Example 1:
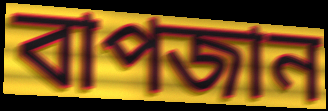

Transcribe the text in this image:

বাপজান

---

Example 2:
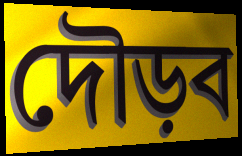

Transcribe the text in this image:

দৌড়ব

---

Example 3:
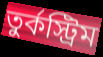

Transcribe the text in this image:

তুর্কস্ট্রিম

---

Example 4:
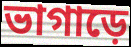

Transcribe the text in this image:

ভাগাড়ে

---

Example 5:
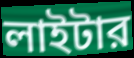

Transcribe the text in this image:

লাইটার